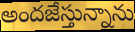
అందజేస్తున్నాను